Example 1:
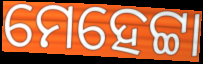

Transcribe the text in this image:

ମେହେଟ୍ଟା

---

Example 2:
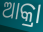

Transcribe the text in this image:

ଆକ୍ରା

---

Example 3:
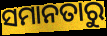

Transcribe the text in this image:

ସମାନତାରୁ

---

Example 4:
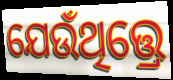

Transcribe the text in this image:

ଯେଉଁଥିତ୍ତ୍ରେ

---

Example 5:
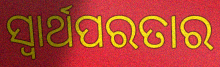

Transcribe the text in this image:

ସ୍ଵାର୍ଥପରତାର